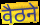
वैठने